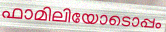
ഫാമിലിയോടൊപ്പം